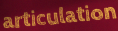
articulation